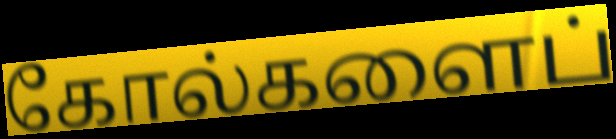
கோல்களைப்